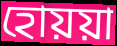
হোয়য়া